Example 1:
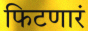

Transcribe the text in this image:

फिटणारं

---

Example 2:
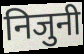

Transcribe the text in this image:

निजुनी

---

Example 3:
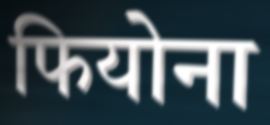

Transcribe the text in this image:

फियोना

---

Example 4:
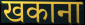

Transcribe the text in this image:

खकाना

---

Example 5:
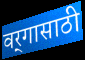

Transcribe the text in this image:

वर्गासाठी